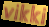
vikki